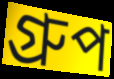
গ্ৰুপ